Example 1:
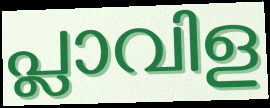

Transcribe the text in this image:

പ്ലാവിള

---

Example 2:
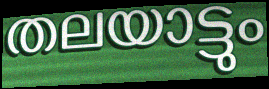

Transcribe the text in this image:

തലയാട്ടും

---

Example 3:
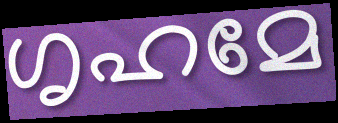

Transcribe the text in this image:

ഗൃഹമേ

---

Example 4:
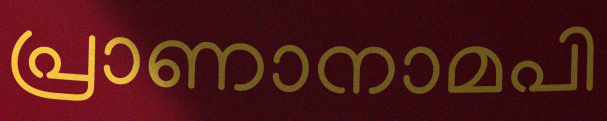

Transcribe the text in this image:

പ്രാണാനാമപി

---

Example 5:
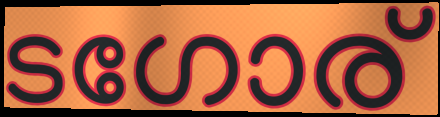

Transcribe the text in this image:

ടഗോര്